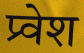
प्र्वेश